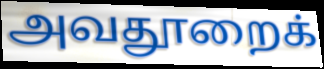
அவதூறைக்